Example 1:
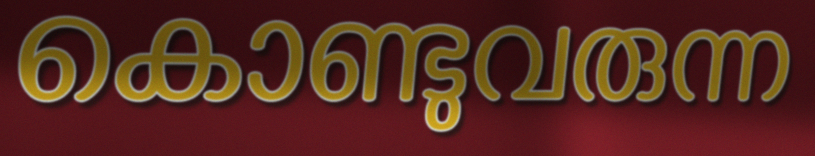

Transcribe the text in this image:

കൊണ്ടുവരുന്ന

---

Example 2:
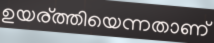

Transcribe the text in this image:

ഉയര്ത്തിയെന്നതാണ്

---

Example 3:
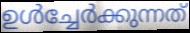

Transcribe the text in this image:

ഉൾച്ചേർക്കുന്നത്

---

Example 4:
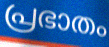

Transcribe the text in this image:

പ്രഭാതം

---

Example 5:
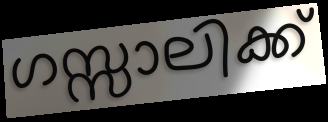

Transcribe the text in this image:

ഗസ്സാലിക്ക്